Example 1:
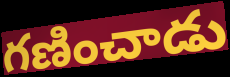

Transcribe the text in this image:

గణించాడు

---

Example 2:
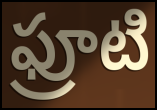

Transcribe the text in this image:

ఫ్రూటి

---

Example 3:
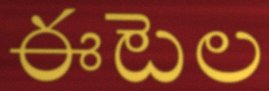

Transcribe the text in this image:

ఈటెల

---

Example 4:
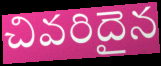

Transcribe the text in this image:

చివరిదైన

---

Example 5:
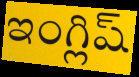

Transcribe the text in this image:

ఇంగ్లిష్